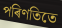
পৰিণতিতে